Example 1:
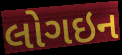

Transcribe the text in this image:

લોગઇન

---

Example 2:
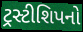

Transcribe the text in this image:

ટ્રસ્ટીશિપનો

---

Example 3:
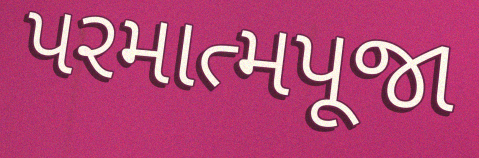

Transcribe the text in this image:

પરમાત્મપૂજા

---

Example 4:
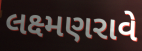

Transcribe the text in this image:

લક્ષ્મણરાવે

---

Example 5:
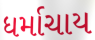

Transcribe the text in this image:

ધર્માચાય